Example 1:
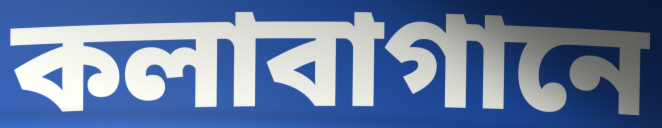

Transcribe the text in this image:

কলাবাগানে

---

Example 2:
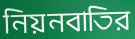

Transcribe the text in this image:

নিয়নবাতির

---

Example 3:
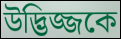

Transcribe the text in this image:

উদ্ভিজ্জকে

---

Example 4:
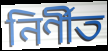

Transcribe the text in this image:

নির্ণীত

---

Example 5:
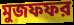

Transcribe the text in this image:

মুজফফর